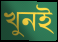
খুনই